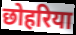
छोहरिया